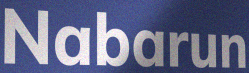
Nabarun